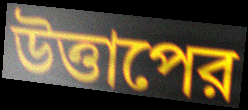
উত্তাপের